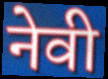
नेवी